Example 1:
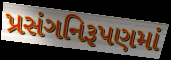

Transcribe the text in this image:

પ્રસંગનિરૂપણમાં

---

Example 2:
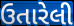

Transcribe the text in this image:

ઉતારેલી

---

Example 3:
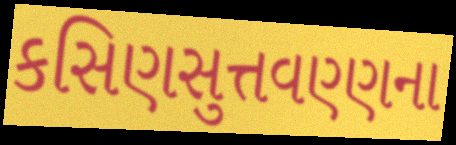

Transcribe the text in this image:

કસિણસુત્તવણ્ણના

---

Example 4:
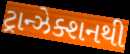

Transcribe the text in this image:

ટ્રાન્ઝેક્શનથી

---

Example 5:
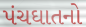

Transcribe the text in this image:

પંચઘાતનો